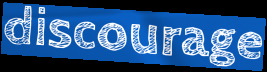
discourage